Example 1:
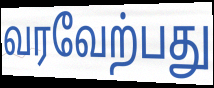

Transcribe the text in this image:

வரவேற்பது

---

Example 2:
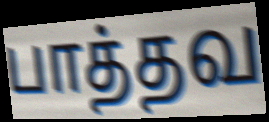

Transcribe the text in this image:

பாத்தவ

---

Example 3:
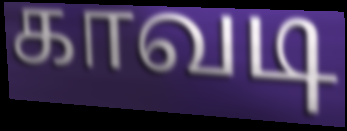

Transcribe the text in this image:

காவடி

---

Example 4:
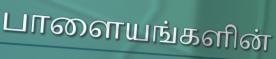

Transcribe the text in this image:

பாளையங்களின்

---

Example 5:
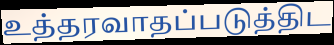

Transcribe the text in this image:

உத்தரவாதப்படுத்திட